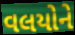
વલયોને